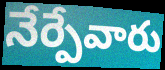
నేర్పేవారు